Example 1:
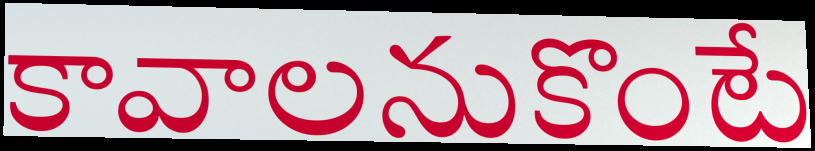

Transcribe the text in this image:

కావాలనుకొంటే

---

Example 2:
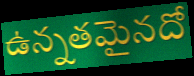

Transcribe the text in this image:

ఉన్నతమైనదో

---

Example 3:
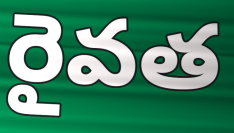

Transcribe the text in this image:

రైవత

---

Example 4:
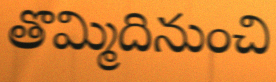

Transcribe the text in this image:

తొమ్మిదినుంచి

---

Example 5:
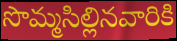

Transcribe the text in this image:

సొమ్మసిల్లినవారికి